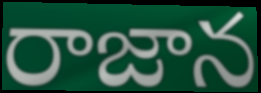
రాజాన